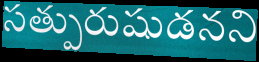
సత్పురుషుడనని